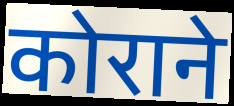
कोराने